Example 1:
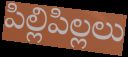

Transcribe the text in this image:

పిల్లిపిల్లలు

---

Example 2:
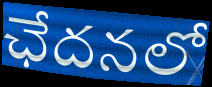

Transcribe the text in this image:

ఛేదనలో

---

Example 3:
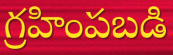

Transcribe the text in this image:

గ్రహింపబడి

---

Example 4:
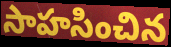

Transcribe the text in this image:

సాహసించిన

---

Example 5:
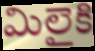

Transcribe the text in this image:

మిలైకి